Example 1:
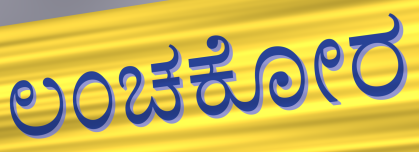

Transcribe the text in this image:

ಲಂಚಕೋರ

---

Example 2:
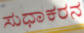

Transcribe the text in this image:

ಸುಧಾಕರನ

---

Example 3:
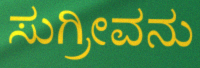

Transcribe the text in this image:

ಸುಗ್ರೀವನು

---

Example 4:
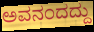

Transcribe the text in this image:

ಅವನಂದದ್ದು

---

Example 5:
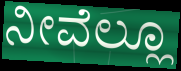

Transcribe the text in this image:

ನೀವೆಲ್ಲೂ